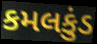
કમલકુંડ